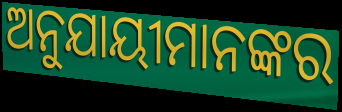
ଅନୁଯାୟୀମାନଙ୍କର